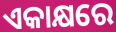
ଏକାକ୍ଷରେ